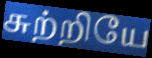
சுற்றியே